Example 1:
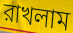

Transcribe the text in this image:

রাখলাম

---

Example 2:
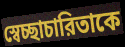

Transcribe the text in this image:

স্বেচ্ছাচারিতাকে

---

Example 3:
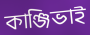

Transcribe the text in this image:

কাঞ্জিভাই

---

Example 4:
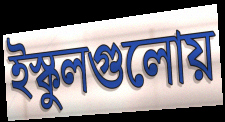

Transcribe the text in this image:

ইস্কুলগুলোয়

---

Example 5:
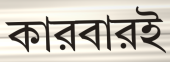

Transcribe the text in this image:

কারবারই